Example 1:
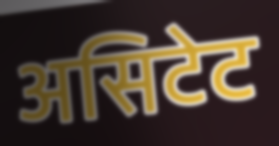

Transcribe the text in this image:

असिटेट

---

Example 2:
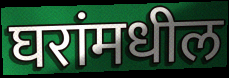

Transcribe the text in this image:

घरांमधील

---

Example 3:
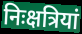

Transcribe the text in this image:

निःक्षत्रियां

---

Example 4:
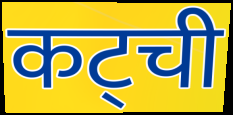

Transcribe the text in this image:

कट्ची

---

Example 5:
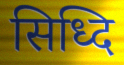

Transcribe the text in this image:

सिध्दि